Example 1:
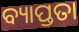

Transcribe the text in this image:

ବ୍ୟାପ୍ତତା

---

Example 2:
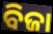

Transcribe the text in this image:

ବିଜା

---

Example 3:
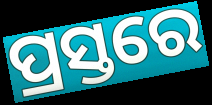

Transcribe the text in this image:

ପ୍ରସ୍ତରେ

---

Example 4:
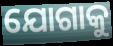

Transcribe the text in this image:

ଯୋଗାକୁ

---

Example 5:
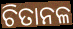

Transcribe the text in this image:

ଚିତାନଳ